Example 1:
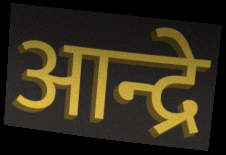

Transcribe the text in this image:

आन्द्रे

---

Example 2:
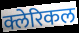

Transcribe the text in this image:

क्लेरिकल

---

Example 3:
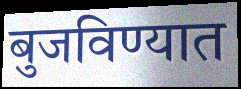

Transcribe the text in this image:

बुजविण्यात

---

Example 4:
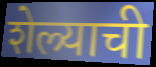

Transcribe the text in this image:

शेल्याची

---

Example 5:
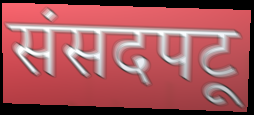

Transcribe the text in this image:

संसदपटू